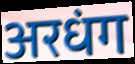
अरधंग